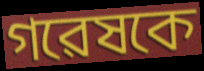
গৱেষকে